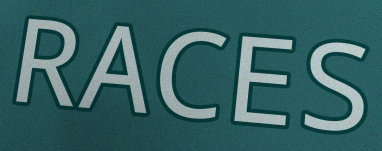
RACES